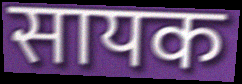
सायक